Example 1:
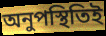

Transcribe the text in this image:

অনুপস্থিতিই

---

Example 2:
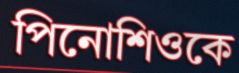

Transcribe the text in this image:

পিনোশিওকে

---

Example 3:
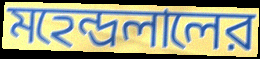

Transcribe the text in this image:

মহেন্দ্রলালের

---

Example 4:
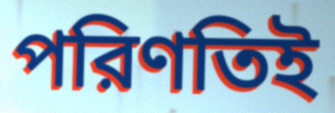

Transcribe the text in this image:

পরিণতিই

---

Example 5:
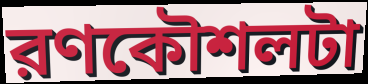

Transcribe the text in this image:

রণকৌশলটা